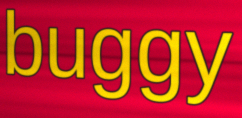
buggy